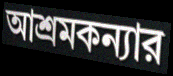
আশ্রমকন্যার